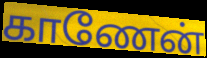
காணேன்